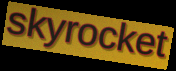
skyrocket